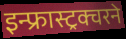
इन्फ्रास्ट्रक्चरने